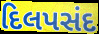
દિલપસંદ